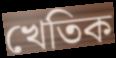
খেতিক